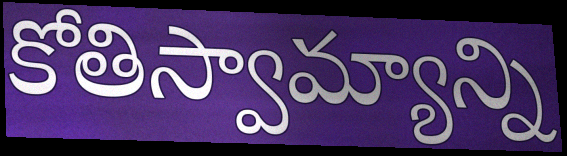
కోతిస్వామ్యాన్ని